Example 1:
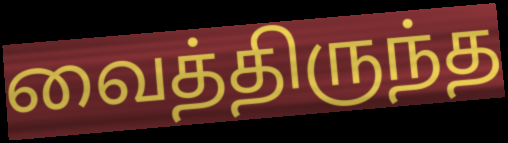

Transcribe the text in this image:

வைத்திருந்த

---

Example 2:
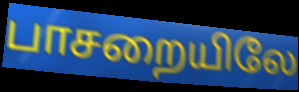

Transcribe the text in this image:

பாசறையிலே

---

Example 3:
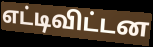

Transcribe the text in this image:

எட்டிவிட்டன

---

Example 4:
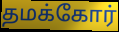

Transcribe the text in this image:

தமக்கோர்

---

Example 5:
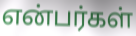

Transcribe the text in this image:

என்பர்கள்